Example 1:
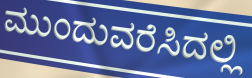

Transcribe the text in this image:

ಮುಂದುವರೆಸಿದಲ್ಲಿ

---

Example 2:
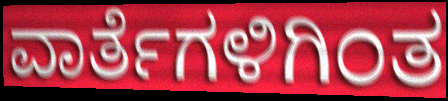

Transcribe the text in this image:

ವಾರ್ತೆಗಳಿಗಿಂತ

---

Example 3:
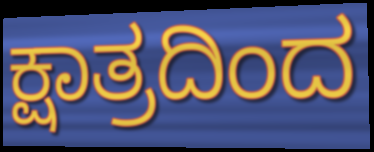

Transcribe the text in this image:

ಕ್ಷಾತ್ರದಿಂದ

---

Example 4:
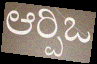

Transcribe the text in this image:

ಆರ್‍ಪಿಒ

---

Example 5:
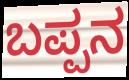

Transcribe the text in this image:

ಬಪ್ಪನ